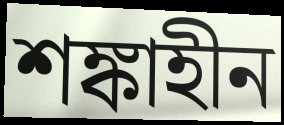
শঙ্কাহীন